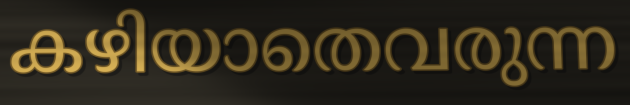
കഴിയാതെവരുന്ന